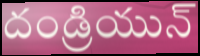
దండ్రియున్